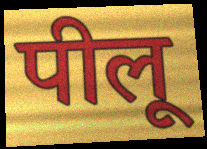
पीलू